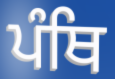
ਪੰਥਿ